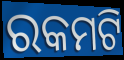
ରକମଟି